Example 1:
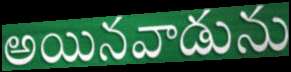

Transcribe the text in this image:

అయినవాడును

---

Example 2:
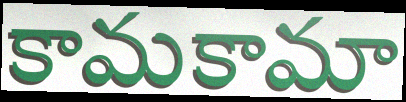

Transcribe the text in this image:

కామకామా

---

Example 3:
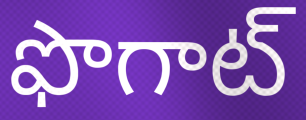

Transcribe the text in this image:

ఫొగాట్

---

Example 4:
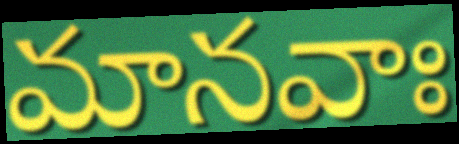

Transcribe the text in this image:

మానవాః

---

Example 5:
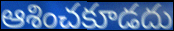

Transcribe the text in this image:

ఆశించకూడదు